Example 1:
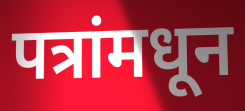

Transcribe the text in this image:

पत्रांमधून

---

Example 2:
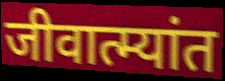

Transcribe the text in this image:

जीवात्म्यांत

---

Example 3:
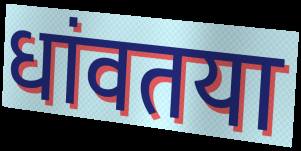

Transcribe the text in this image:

धांवतया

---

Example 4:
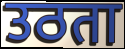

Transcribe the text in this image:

उठता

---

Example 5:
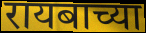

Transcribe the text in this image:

रायबाच्या